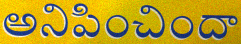
అనిపించిందా